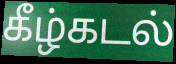
கீழ்கடல்